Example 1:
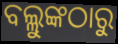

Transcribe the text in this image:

ବଲ୍ଲୁଙ୍କଠାରୁ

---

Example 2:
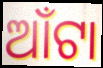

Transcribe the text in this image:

ଆଁଟା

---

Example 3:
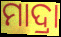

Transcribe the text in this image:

ମାଦ୍ରା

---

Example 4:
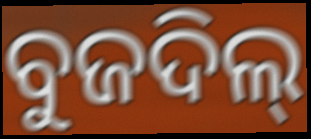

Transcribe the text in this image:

ବୁଜଦିଲ୍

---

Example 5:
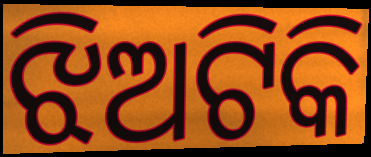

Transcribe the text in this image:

ଝିଅଟିକି